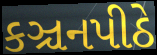
કઞ્ચનપીઠે